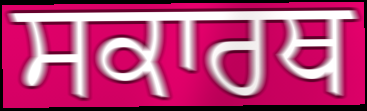
ਸਕਾਰਥ